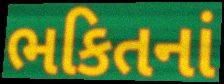
ભકિતનાં